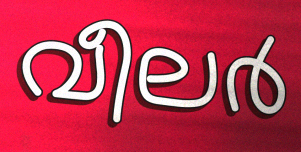
വീലർ